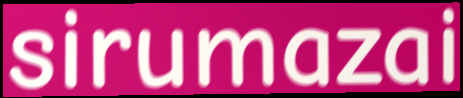
sirumazai